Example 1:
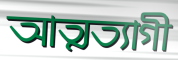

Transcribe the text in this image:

আত্মত্যাগী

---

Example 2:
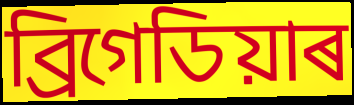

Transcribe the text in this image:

ব্ৰিগেডিয়াৰ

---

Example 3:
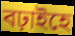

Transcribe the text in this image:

বঢ়াইহে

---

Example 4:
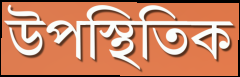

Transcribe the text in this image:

উপস্থিতিক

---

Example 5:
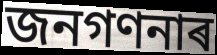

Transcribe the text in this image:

জনগণনাৰ